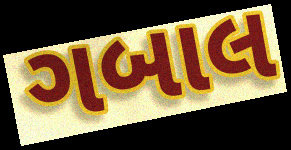
ગબાલ